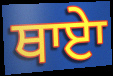
ਥਾਏਾ